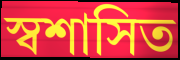
স্বশাসিত